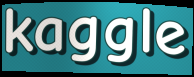
kaggle